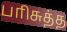
பரிசுத்த